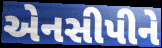
એનસીપીને